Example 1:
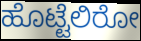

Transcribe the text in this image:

ಹೊಟ್ಟೆಲಿರೋ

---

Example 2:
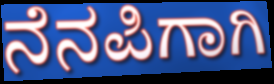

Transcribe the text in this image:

ನೆನಪಿಗಾಗಿ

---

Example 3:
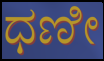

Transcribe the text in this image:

ಧಣೀ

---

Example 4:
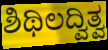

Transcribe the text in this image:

ಶಿಥಿಲದ್ವಿತ್ವ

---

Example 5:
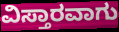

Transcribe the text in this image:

ವಿಸ್ತಾರವಾಗು